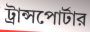
ট্রান্সপোর্টার